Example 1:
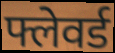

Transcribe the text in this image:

फ्लेवर्ड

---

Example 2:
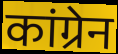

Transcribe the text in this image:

कांग्रेन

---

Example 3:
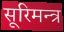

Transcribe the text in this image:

सूरिमन्त्र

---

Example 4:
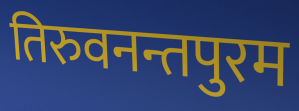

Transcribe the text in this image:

तिरुवनन्तपुरम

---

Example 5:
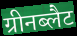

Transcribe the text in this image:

ग्रीनब्लैट